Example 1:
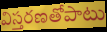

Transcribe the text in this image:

విస్తరణతోపాటు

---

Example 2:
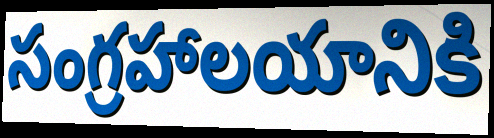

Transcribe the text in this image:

సంగ్రహాలయానికి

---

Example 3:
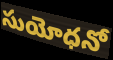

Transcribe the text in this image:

సుయోధనో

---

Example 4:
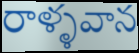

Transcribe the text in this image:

రాళ్ళవాన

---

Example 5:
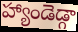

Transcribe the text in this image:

హ్యాండెడ్గా